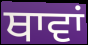
ਥਾਵਾਂ